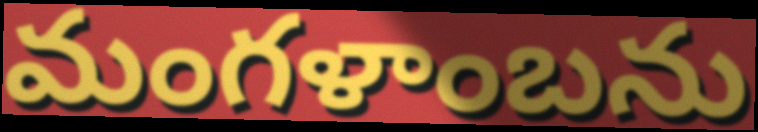
మంగళాంబను